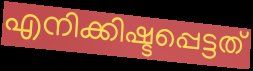
എനിക്കിഷ്ടപ്പെട്ടത്